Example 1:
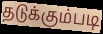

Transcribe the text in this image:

தடுக்கும்படி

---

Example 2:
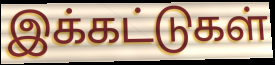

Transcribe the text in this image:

இக்கட்டுகள்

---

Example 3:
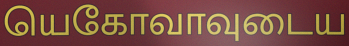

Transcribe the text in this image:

யெகோவாவுடைய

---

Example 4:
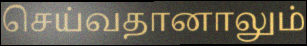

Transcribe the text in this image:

செய்வதானாலும்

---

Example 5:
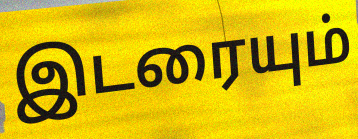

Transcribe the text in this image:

இடரையும்